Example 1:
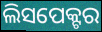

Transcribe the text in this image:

ଲିସପେକ୍ଟର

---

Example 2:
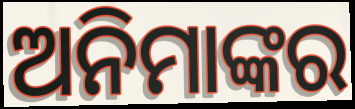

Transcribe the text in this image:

ଅନିମାଙ୍କର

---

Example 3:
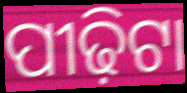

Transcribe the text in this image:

ପୀଢ଼ିଟା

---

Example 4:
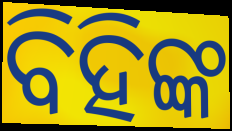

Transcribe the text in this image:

ବିହିଙ୍କ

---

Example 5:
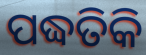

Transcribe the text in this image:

ପଦ୍ଧତିକି